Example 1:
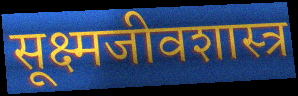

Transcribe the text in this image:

सूक्ष्मजीवशास्त्र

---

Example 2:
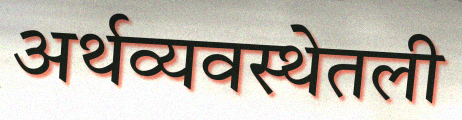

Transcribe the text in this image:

अर्थव्यवस्थेतली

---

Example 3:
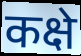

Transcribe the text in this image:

कक्षे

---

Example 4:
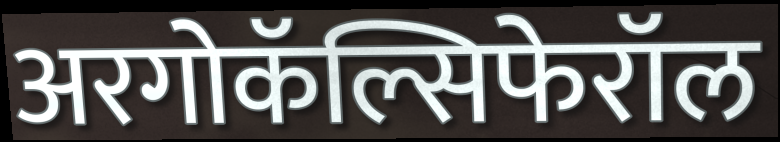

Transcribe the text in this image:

अरगोकॅल्सिफेरॉल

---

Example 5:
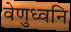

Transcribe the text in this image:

वेणुध्वनि